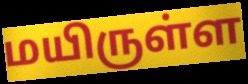
மயிருள்ள